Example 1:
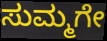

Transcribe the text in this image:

ಸುಮ್ಮಗೇ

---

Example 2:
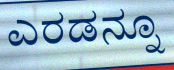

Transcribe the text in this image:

ಎರಡನ್ನೂ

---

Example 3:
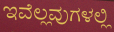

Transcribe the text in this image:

ಇವೆಲ್ಲವುಗಳಲ್ಲಿ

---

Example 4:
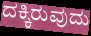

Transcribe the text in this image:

ದಕ್ಕಿರುವುದು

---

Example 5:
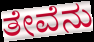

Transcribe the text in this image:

ತೇವೆನು